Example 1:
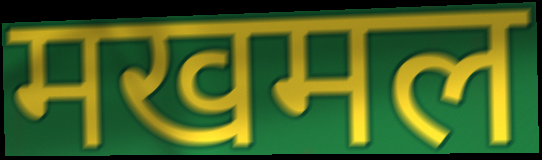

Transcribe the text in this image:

मखमल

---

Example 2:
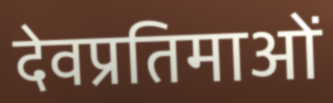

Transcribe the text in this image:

देवप्रतिमाओं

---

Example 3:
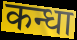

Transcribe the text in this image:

कन्धा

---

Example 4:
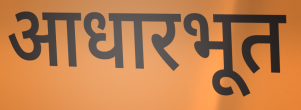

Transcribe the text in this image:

आधारभूत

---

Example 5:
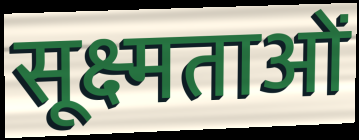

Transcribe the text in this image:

सूक्ष्मताओं